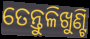
ତେନ୍ତୁଳିଖୁଣ୍ଟି